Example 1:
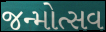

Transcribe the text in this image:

જન્મોત્સવ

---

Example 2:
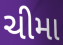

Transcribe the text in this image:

ચીમા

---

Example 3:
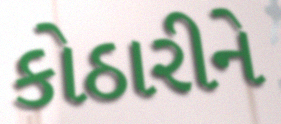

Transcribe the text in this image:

કોઠારીને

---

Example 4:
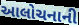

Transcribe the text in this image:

આલોચનાની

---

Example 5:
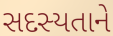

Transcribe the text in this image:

સદસ્યતાને